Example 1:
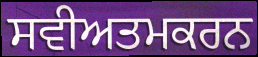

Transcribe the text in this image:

ਸਵੀਅਤਮਕਰਨ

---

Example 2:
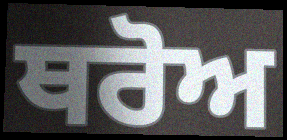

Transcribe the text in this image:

ਥਰੋਅ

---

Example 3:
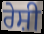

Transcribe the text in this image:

ਰੇਸ਼ੀ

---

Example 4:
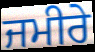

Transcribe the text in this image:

ਜਮੀਰੇ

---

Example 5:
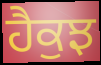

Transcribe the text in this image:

ਹੈਕੁਝ